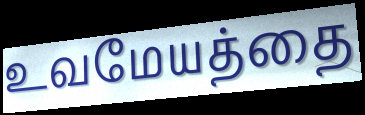
உவமேயத்தை